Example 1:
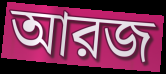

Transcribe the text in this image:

আরজ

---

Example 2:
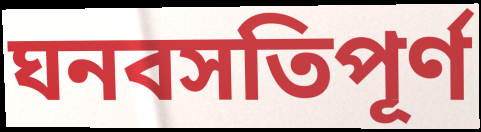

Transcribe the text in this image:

ঘনবসতিপূর্ণ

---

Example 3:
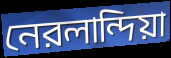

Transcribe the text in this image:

নেরলান্দিয়া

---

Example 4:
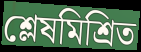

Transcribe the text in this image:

শ্লেষমিশ্রিত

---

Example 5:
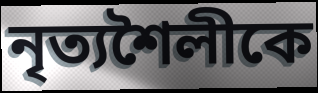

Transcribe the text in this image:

নৃত্যশৈলীকে